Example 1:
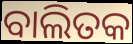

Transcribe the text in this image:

ବାଲିତକ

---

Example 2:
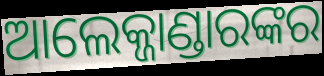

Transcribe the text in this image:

ଆଲେକ୍ଜାଣ୍ଡାରଙ୍କର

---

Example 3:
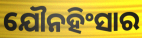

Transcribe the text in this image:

ଯୌନହିଂସାର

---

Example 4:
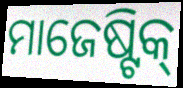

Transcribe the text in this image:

ମାଜେଷ୍ଟିକ୍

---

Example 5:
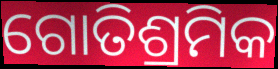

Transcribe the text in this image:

ଗୋତିଶ୍ରମିକ